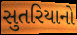
સુતરિયાનો